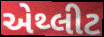
એથ્લીટ